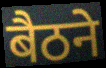
बैठने